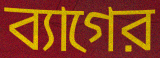
ব্যাগের